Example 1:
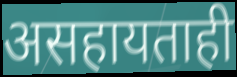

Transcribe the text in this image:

असहायताही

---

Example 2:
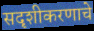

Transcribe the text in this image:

सदृशीकरणाचे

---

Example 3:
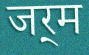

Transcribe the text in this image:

जर्म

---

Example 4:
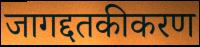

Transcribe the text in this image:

जागद्दतकीकरण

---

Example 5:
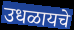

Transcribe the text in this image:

उधळायचे